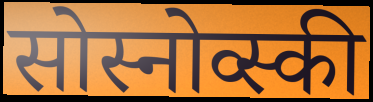
सोस्नोव्स्की